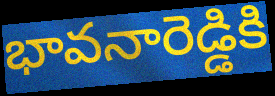
భావనారెడ్డికి